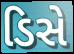
ડિસે